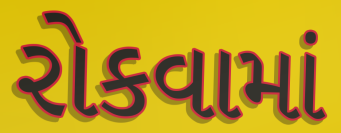
રોકવામાં